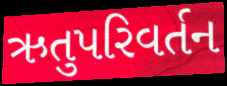
ઋતુપરિવર્તન